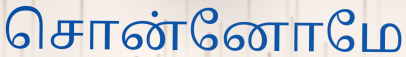
சொன்னோமே